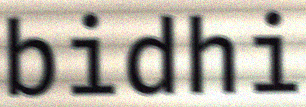
bidhi